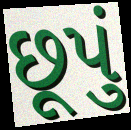
છૂપું